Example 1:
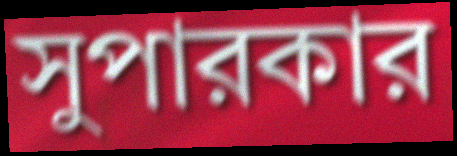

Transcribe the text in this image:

সুপারকার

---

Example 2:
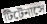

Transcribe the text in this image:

টিটেনাসে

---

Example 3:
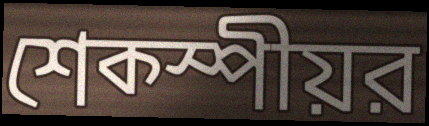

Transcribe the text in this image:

শেক্স্পীয়র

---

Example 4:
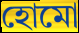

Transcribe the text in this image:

হোমো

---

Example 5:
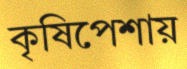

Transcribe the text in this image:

কৃষিপেশায়